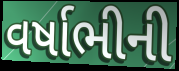
વર્ષાભીની